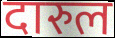
दारुल